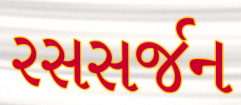
રસસર્જન